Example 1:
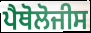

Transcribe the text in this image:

ਪੈਥੋਲੋਜੀਸ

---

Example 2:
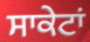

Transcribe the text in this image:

ਸਾਕੇਟਾਂ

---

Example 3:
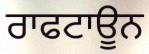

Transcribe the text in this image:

ਰਾਫਟਾਊਨ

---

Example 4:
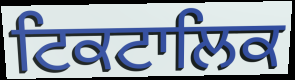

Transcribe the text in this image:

ਟਿਕਟਾਲਿਕ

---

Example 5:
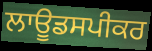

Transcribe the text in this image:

ਲਾਊਡਸਪੀਕਰ